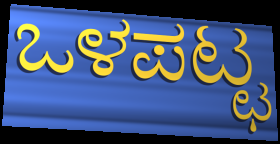
ಒಳಪಟ್ಟ